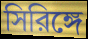
সিরিঙ্গে